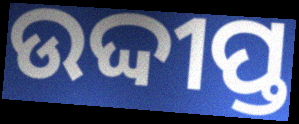
ଉଦ୍ଦୀପ୍ତ